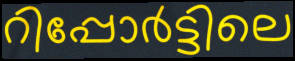
റിപ്പോർട്ടിലെ